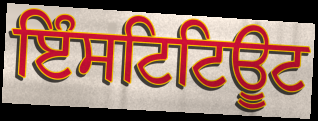
ਇੰਸਟਿਟਿਊਟ